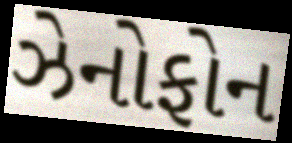
ઝેનોફોન